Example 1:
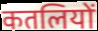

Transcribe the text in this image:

कतलियों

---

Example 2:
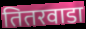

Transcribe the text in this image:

तितरवाडा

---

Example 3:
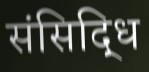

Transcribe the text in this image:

संसिद्धि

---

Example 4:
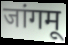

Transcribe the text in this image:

जांगमू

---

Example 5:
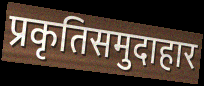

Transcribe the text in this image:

प्रकृतिसमुदाहार